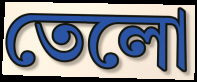
তেলো